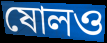
ষোলও